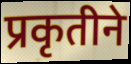
प्रकृतीने